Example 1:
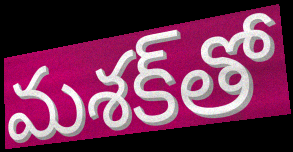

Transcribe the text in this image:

మశక్‌తో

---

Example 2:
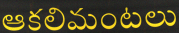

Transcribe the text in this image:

ఆకలిమంటలు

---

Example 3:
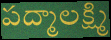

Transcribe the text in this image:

పద్మాలక్ష్మి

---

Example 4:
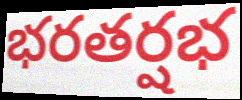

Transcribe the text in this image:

భరతర్షభ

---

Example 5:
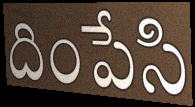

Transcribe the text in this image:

దింపేసి